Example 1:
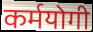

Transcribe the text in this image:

कर्मयोगी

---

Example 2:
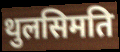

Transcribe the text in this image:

थुलसिमति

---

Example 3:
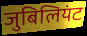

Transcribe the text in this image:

जुबिलियंट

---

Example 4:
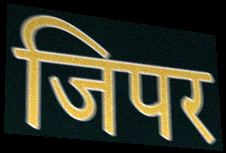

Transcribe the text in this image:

जिपर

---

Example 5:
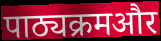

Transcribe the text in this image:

पाठ्यक्रमऔर